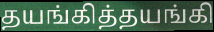
தயங்கித்தயங்கி